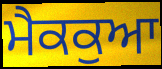
ਮੈਕਕੁਆ